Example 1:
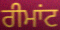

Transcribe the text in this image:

ਰੀਮਾਂਟ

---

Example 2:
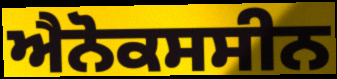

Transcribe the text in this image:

ਐਨੋਕਸਸੀਨ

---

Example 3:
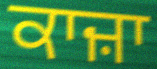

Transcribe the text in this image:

ਕਾਜ਼ਾ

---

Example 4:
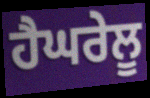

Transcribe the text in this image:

ਹੈਘਰੇਲੂ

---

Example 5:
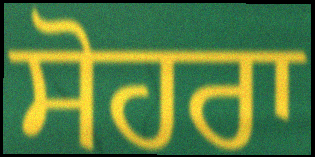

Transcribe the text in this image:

ਸੋਹਰਾ